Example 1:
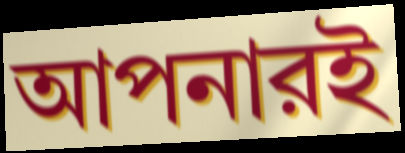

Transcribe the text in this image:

আপনারই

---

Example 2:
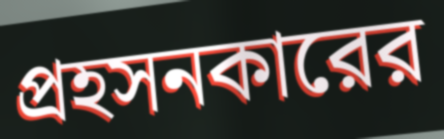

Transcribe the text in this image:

প্রহসনকারের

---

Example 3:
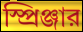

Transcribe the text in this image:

স্প্রিঞ্জার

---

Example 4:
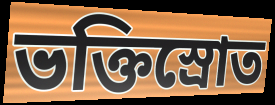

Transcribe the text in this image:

ভক্তিস্রোত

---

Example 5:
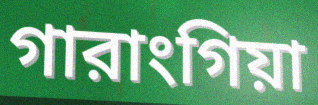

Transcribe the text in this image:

গারাংগিয়া